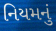
નિયમનું